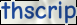
thscrip